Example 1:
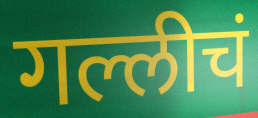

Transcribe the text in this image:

गल्लीचं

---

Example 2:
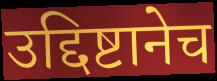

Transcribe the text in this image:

उद्दिष्टानेच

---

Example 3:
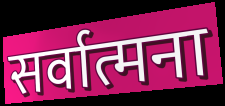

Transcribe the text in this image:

सर्वात्मना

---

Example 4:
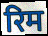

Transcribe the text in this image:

रिम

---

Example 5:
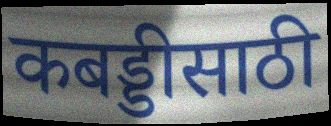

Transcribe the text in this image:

कबड्डीसाठी